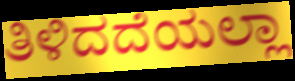
ತಿಳಿದದೆಯಲ್ಲಾ